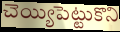
చెయ్యిపెట్టుకొని